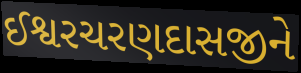
ઈશ્વરચરણદાસજીને